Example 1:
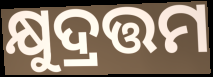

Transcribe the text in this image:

କ୍ଷୁଦ୍ରତ୍ତମ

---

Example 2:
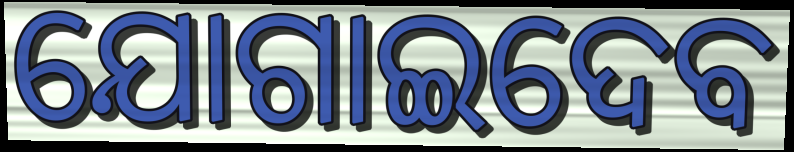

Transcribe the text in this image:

ଯୋଗାଇଦେବ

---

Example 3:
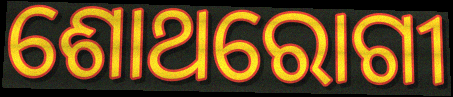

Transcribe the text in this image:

ଶୋଥରୋଗୀ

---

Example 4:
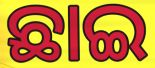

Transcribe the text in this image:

ଛାଇ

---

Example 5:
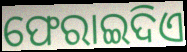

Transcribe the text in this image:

ଫେରାଇଦିଏ